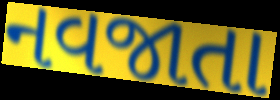
નવજાતા